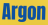
Argon